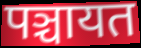
पञ्चायत